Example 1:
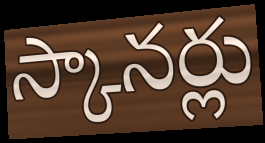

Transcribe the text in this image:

స్కానర్లు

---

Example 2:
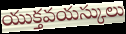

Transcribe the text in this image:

యుక్తవయస్కులు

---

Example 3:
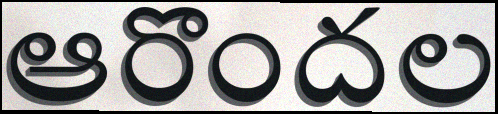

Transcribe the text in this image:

ఆరొందల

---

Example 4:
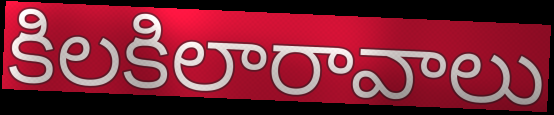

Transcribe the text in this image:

కిలకిలారావాలు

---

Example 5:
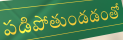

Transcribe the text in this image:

పడిపోతుండడంతో